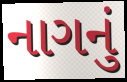
નાગનું